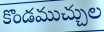
కొండముచ్చుల